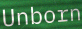
Unborn